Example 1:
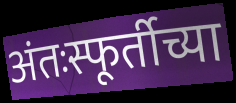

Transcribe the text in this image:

अंतःस्फूर्तीच्या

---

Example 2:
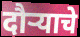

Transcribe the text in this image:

दौर्‍याचे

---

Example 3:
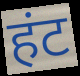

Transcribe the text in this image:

हंट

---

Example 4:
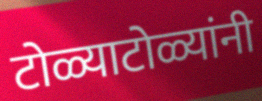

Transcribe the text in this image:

टोळ्याटोळ्यांनी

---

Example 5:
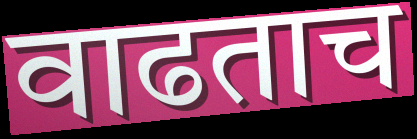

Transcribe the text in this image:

वाढताच